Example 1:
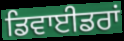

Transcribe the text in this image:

ਡਿਵਾਈਡਰਾਂ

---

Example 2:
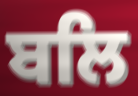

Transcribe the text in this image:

ਬਲਿ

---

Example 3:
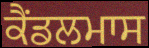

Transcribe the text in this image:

ਕੈਂਡਲਮਾਸ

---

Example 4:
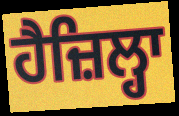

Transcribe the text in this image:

ਹੈਜ਼ਿਲ੍ਹਾ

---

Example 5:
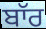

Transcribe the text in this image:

ਬਾੱਰ